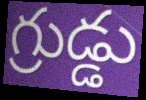
గ్రుడ్డు